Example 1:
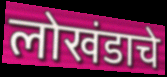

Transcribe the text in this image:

लोखंडाचे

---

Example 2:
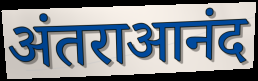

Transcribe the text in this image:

अंतराआनंद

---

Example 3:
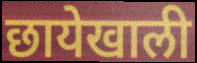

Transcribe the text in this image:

छायेखाली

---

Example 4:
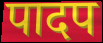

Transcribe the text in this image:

पादप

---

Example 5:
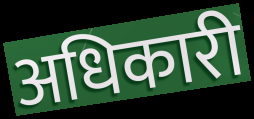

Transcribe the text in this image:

अधिकारी